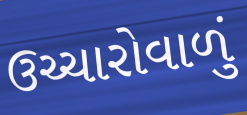
ઉચ્ચારોવાળું